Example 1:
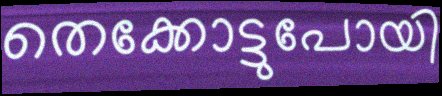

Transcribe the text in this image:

തെക്കോട്ടുപോയി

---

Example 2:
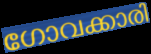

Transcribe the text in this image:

ഗോവക്കാരി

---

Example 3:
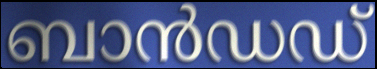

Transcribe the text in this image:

ബാൻഡഡ്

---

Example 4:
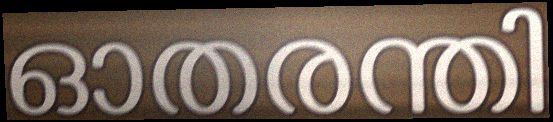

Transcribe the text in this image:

ഓതരന്തി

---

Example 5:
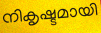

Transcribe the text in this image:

നികൃഷ്ടമായി